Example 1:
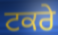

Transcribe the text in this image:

ਟਕਰੇ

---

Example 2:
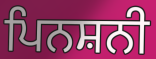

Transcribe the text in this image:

ਪਿਨਸ਼ਨੀ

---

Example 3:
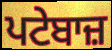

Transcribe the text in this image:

ਪਟੇਬਾਜ਼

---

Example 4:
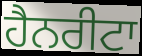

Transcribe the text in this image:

ਹੈਨਰੀਟਾ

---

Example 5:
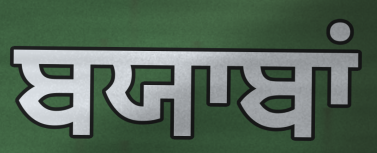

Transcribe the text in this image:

ਬਯਾਬਾਂ